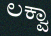
ಲಕ್ವಾ